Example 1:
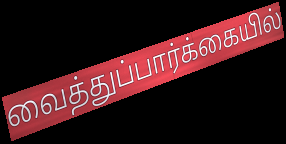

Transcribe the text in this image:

வைத்துப்பார்க்கையில்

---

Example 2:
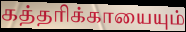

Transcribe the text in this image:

கத்தரிக்காயையும்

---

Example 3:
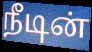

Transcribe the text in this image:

நீடின்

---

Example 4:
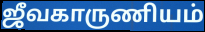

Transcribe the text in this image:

ஜீவகாருணியம்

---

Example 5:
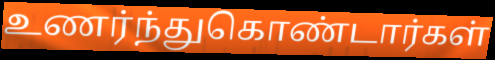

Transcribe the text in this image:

உணர்ந்துகொண்டார்கள்